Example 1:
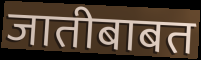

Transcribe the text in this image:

जातीबाबत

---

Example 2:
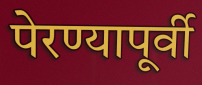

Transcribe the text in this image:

पेरण्यापूर्वी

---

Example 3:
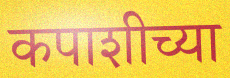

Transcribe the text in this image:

कपाशीच्या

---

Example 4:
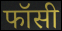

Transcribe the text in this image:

फॉसी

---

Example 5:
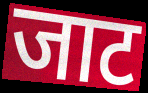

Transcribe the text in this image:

जाट